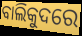
ବାଲିକୁଦରେ